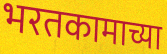
भरतकामाच्या